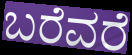
ಬರೆವರೆ